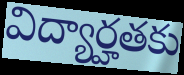
విద్యార్హతకు